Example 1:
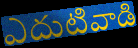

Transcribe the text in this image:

ఎదుటివాడి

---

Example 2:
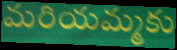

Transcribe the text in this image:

మరియమ్మకు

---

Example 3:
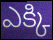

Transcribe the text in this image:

ఎక్కి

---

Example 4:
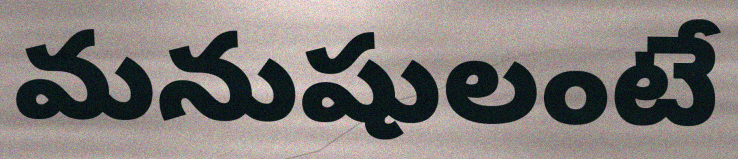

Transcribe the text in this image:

మనుషులంటే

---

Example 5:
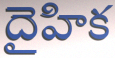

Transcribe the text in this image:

దైహిక